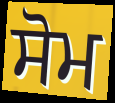
ਸੋਮ